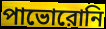
পাভোরোনি